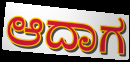
ಆದಾಗ